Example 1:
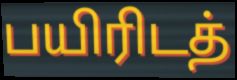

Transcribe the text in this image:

பயிரிடத்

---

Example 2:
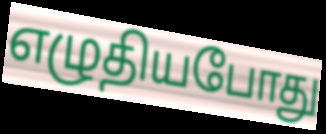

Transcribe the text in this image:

எழுதியபோது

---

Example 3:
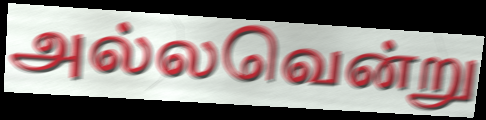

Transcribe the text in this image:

அல்லவென்று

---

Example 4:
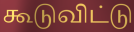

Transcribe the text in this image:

கூடுவிட்டு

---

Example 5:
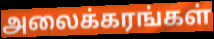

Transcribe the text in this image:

அலைக்கரங்கள்